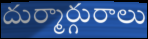
దుర్మార్గురాలు